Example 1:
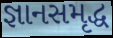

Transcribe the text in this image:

જ્ઞાનસમૃદ્ધ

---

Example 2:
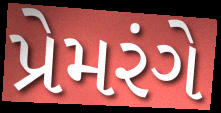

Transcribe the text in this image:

પ્રેમરંગે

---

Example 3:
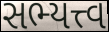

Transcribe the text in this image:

સભ્યત્ત્વ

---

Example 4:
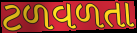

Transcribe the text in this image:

ટળવળતા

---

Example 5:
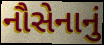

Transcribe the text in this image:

નૌસેનાનું